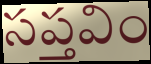
సప్తవిం